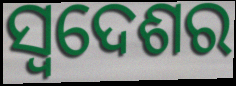
ସ୍ଵଦେଶର